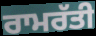
ਰਾਮਰੱਤੀ